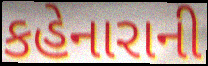
કહેનારાની